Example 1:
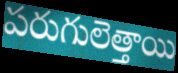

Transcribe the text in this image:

పరుగులెత్తాయి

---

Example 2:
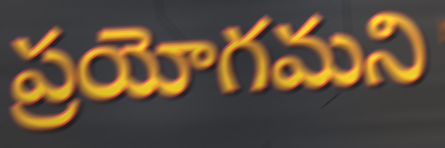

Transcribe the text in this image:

ప్రయోగమని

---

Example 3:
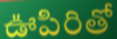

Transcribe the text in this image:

ఊపిరితో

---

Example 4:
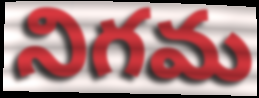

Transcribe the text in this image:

నిగమ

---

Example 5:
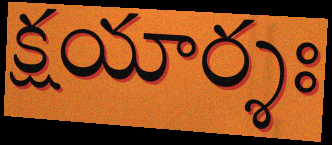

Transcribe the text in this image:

క్షయార్శః